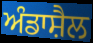
ਅੰਡਾਸ਼ੈਲ